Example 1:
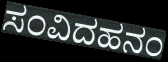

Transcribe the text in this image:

ಸಂವಿದಹನಂ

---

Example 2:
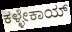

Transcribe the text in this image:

ಕಳ್ಳೇಕಾಯ್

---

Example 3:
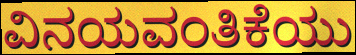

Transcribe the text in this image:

ವಿನಯವಂತಿಕೆಯು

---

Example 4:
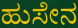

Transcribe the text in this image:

ಹುಸೇನ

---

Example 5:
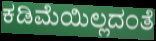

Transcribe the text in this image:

ಕಡಿಮೆಯಿಲ್ಲದಂತೆ